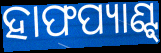
ହାଫପ୍ୟାଣ୍ଟ୍